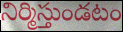
నిర్మిస్తుండటం